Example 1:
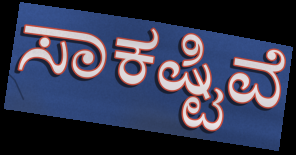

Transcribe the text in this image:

ಸಾಕಷ್ಟಿವೆ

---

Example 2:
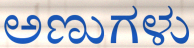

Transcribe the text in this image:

ಅಣುಗಳು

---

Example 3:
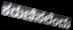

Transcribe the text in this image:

ಕರುಣಿಸಲೆಂದು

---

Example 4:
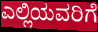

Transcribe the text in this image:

ಎಲ್ಲಿಯವರಿಗೆ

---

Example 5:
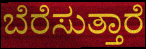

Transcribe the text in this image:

ಬೆರೆಸುತ್ತಾರೆ